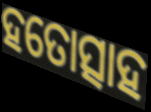
ହତୋତ୍ସାହ